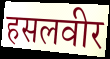
हसलवीर